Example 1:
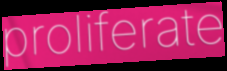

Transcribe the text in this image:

proliferate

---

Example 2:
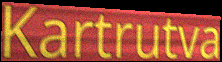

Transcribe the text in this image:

Kartrutva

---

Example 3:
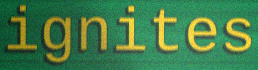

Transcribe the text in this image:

ignites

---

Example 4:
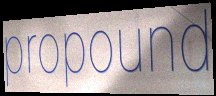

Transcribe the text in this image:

propound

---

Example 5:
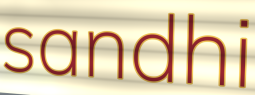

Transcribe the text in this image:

sandhi